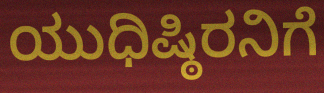
ಯುಧಿಷ್ಠಿರನಿಗೆ